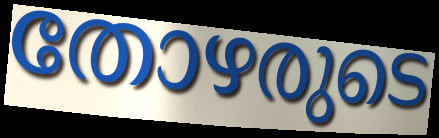
തോഴരുടെ